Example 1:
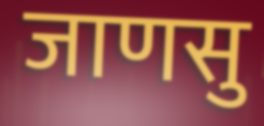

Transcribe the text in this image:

जाणसु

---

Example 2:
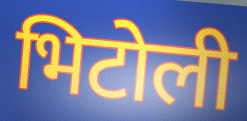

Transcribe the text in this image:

भिटोली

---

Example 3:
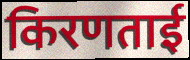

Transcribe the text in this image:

किरणताई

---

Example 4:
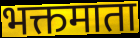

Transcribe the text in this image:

भक्तमाता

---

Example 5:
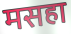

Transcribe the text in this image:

मसहा